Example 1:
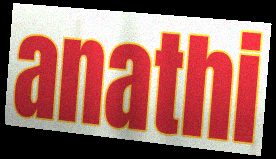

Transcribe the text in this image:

anathi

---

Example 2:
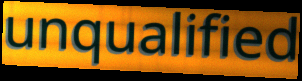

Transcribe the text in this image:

unqualified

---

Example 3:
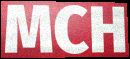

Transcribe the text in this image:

MCH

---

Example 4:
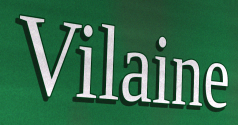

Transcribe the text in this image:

Vilaine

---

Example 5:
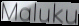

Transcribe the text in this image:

Maluku